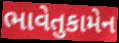
ભાવેતુકામેન